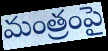
మంత్రంపై